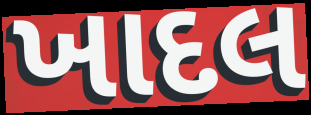
ખાદલ